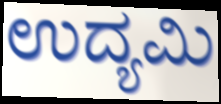
ಉದ್ಯಮಿ